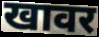
खावर